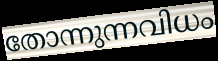
തോന്നുന്നവിധം